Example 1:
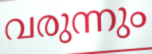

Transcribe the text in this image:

വരുന്നും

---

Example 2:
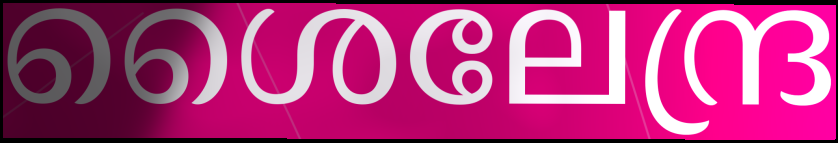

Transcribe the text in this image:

ശൈലേന്ദ്ര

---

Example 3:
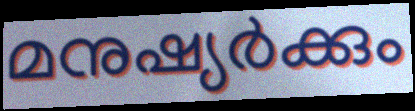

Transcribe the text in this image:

മനുഷ്യർക്കും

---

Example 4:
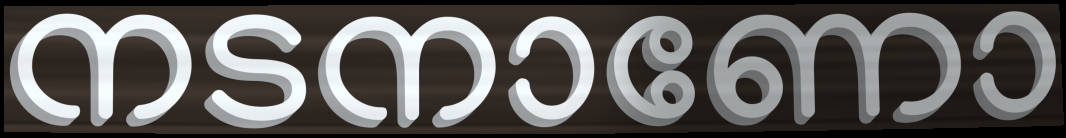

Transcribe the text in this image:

നടനാണോ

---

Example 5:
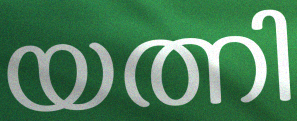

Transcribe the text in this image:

യത്നി